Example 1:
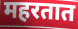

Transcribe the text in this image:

महरतात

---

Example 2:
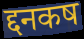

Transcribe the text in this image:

द्दनकष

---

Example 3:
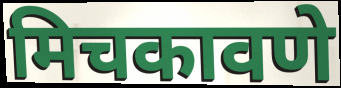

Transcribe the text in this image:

मिचकावणे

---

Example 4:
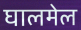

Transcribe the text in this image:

घालमेल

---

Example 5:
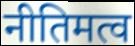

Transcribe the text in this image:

नीतिमत्व